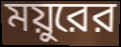
ময়ুরের